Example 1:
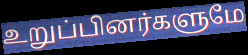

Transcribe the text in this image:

உறுப்பினர்களுமே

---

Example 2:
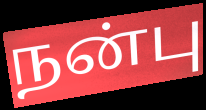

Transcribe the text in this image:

நன்பு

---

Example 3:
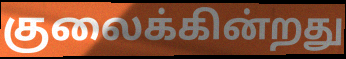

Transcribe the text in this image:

குலைக்கின்றது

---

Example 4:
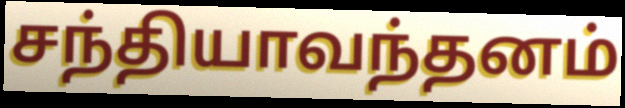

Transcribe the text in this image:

சந்தியாவந்தனம்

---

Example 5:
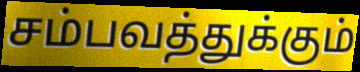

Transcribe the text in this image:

சம்பவத்துக்கும்